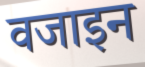
वजाइन